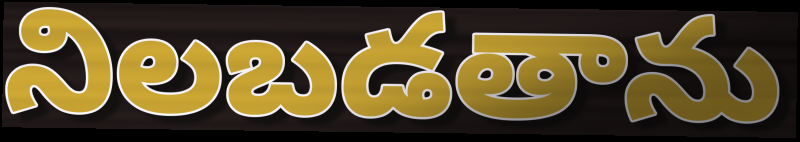
నిలబడతాను